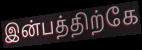
இன்பத்திற்கே